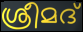
ശ്രീമദ്